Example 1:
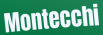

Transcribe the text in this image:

Montecchi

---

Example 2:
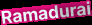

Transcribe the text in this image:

Ramadurai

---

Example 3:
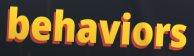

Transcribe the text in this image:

behaviors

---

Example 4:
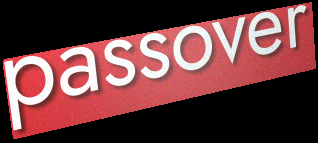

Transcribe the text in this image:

passover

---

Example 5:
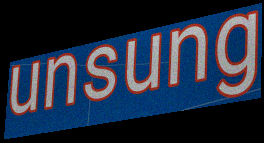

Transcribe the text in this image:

unsung